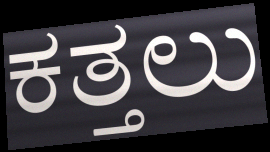
ಕತ್ತಲು